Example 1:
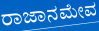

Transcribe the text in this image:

ರಾಜಾನಮೇವ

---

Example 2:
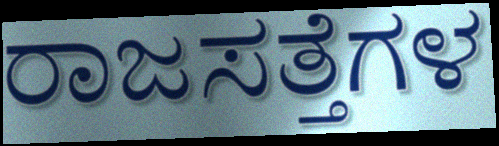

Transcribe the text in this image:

ರಾಜಸತ್ತೆಗಳ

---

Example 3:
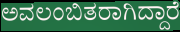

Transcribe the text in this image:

ಅವಲಂಬಿತರಾಗಿದ್ದಾರೆ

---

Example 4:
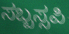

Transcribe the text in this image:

ಸಬ್ಬಸ್ಸಪಿ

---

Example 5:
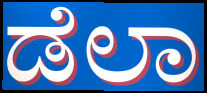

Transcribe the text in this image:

ಡೆಲಾ